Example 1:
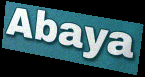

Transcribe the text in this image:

Abaya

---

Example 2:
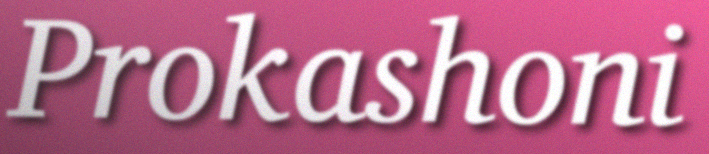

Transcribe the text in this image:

Prokashoni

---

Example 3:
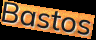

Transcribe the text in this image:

Bastos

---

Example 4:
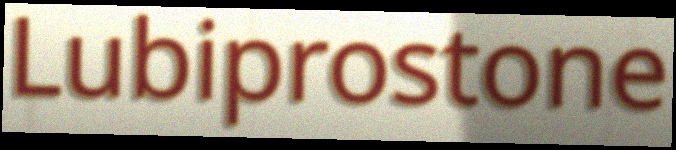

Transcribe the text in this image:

Lubiprostone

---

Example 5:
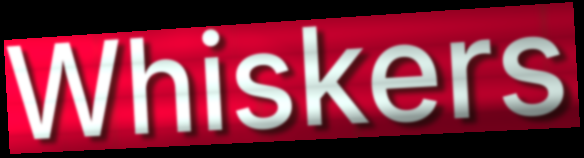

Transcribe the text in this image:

Whiskers